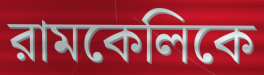
রামকেলিকে